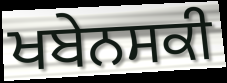
ਖਬੇਨਸਕੀ